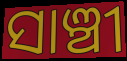
ସାଞ୍ଚୀ